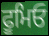
ਫੂਮਿਓ